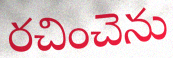
రచించెను